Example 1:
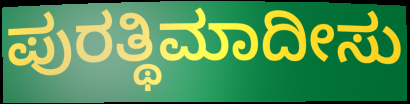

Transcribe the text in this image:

ಪುರತ್ಥಿಮಾದೀಸು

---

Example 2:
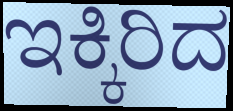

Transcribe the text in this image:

ಇಕ್ಕಿರಿದ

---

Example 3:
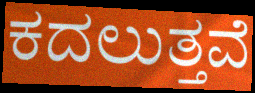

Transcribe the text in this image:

ಕದಲುತ್ತವೆ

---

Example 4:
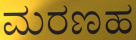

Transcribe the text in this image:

ಮರಣಹ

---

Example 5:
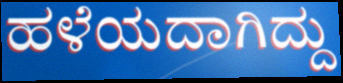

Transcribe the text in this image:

ಹಳೆಯದಾಗಿದ್ದು